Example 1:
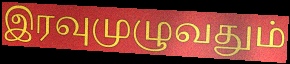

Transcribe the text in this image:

இரவுமுழுவதும்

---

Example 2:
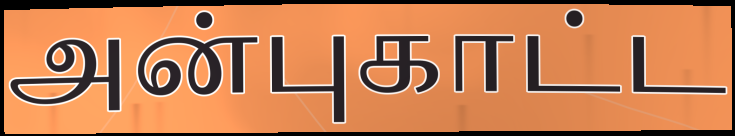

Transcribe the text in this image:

அன்புகாட்ட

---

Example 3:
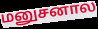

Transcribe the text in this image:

மனுசனால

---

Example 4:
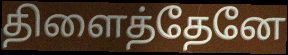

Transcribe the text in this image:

திளைத்தேனே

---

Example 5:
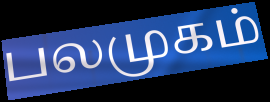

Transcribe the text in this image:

பலமுகம்